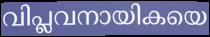
വിപ്ലവനായികയെ